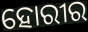
ହୋରୀର